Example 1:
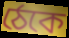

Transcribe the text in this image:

ঠেকে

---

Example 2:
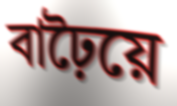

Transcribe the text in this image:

বাঢ়ৈয়ে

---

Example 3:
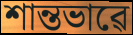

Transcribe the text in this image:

শান্তভাৱে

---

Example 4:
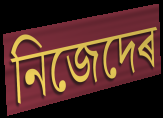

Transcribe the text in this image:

নিজেদেৰ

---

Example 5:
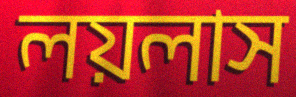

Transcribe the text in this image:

লয়লাস